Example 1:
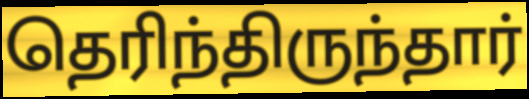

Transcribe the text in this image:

தெரிந்திருந்தார்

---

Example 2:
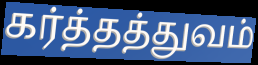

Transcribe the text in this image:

கர்த்தத்துவம்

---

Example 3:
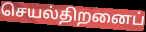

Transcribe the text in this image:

செயல்திறனைப்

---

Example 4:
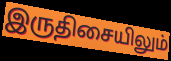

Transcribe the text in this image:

இருதிசையிலும்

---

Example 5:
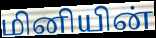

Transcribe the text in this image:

மினியின்